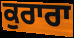
ਕੁਰਾਰਾ